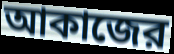
আকাজের